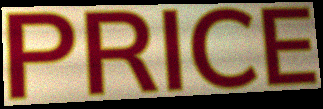
PRICE